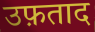
उफ़ताद